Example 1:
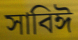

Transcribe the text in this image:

সাবিঈ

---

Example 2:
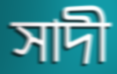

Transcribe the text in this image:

সাদী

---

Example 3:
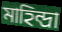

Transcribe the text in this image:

মাহিন্দ্রা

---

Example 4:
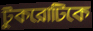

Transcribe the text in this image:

টুকরোটিকে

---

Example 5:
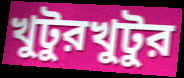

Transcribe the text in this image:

খুটুরখুটুর